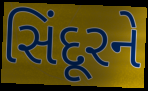
સિંદૂરને